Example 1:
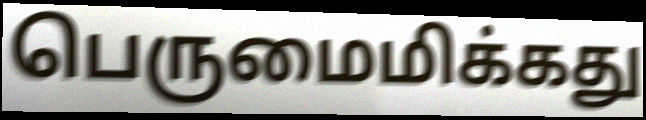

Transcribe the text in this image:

பெருமைமிக்கது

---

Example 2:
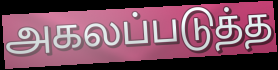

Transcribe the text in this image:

அகலப்படுத்த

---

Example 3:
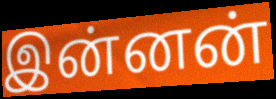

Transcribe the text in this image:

இன்னன்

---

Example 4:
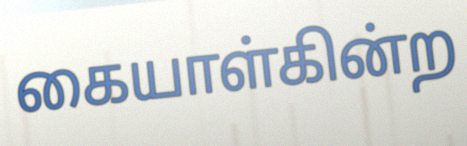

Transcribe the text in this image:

கையாள்கின்ற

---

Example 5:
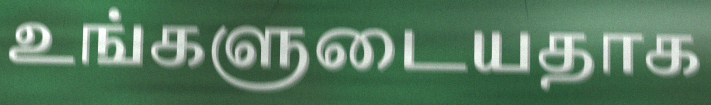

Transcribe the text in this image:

உங்களுடையதாக